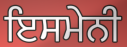
ਇਸਮੇਨੀ